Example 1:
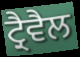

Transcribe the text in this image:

ਟ੍ਰੈਵੈਲ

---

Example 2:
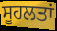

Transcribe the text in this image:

ਸੂਹਲਤਾਂ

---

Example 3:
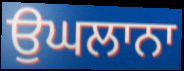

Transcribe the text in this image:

ਉਘਲਾਨਾ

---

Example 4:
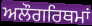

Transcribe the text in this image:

ਅਲੌਗਰਿਥਮਾਂ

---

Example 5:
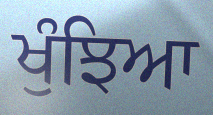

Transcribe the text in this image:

ਖੁੰਝਿਆ